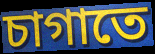
চাগাতে